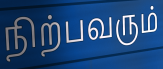
நிற்பவரும்